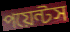
পয়েন্টস